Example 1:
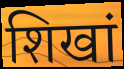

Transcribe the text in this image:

शिखां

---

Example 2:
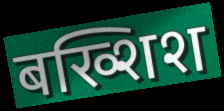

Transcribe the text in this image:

बख्शिश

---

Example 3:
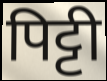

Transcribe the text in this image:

पिट्टी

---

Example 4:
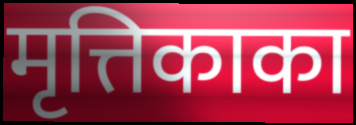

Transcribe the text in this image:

मृत्तिकाका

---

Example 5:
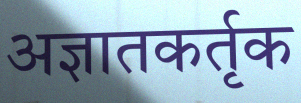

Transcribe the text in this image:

अज्ञातकर्तृक